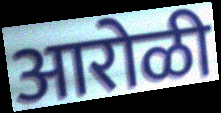
आरोळी